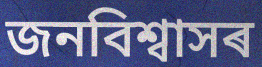
জনবিশ্বাসৰ